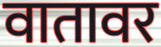
वातावर